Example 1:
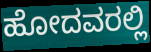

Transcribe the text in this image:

ಹೋದವರಲ್ಲಿ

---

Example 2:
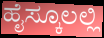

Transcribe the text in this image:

ಹೈಸ್ಕೂಲಲ್ಲಿ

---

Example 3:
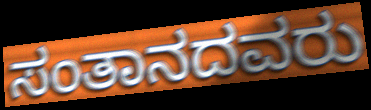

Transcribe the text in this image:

ಸಂತಾನದವರು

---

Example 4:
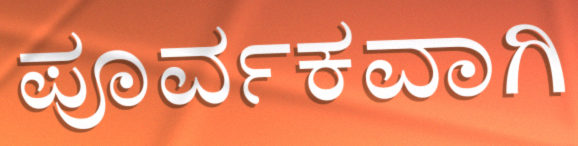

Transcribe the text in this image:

ಪೂರ್ವಕವಾಗಿ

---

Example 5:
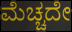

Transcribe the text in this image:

ಮೆಚ್ಚದೇ